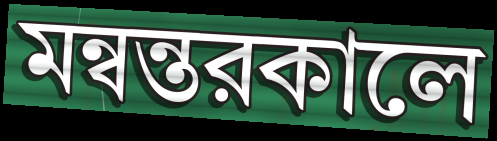
মন্বন্তরকালে